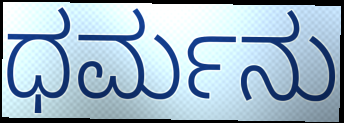
ಧರ್ಮನು